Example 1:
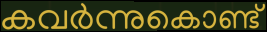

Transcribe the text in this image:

കവർന്നുകൊണ്ട്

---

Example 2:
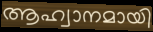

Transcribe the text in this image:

ആഹ്വാനമായി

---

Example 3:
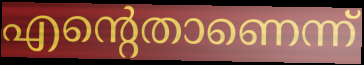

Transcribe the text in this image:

എന്റെതാണെന്ന്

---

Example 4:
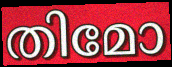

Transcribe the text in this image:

തിമോ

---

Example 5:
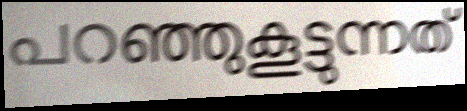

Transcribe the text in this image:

പറഞ്ഞുകൂട്ടുന്നത്